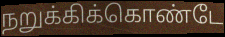
நறுக்கிக்கொண்டே